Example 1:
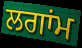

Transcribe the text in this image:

ਲਗਾਂਮ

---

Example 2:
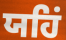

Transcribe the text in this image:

ਯਹਿਂ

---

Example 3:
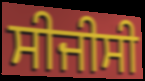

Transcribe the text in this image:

ਸੀਜੀਸੀ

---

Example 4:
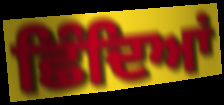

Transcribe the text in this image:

ਛਿੰਦਿਆਂ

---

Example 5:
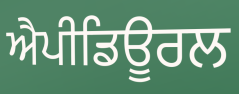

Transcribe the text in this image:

ਐਪੀਡਿਊਰਲ